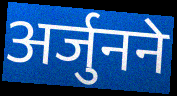
अर्जुनने